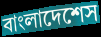
বাংলাদেশেস